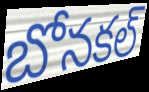
బోనకల్